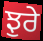
ਝੁਰੇ